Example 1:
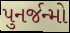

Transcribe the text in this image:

પુનર્જન્મો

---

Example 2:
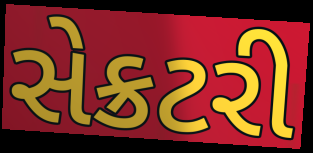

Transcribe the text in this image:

સેક્રટરી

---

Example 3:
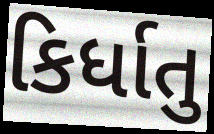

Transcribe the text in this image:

કિર્ધાતુ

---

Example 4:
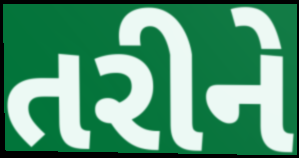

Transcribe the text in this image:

તરીને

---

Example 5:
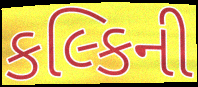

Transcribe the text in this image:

કલ્કિની